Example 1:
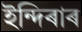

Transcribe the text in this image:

ইন্দিৰাৰ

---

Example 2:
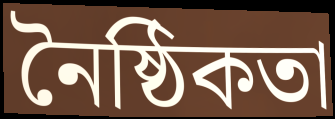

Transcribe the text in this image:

নৈষ্ঠিকতা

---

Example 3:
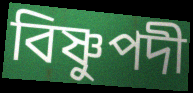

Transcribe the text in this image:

বিষ্ণুপদী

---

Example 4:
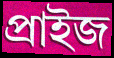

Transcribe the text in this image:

প্ৰাইজ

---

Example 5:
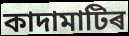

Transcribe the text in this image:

কাদামাটিৰ